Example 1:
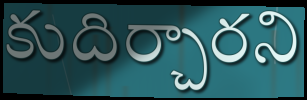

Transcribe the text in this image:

కుదిర్చారని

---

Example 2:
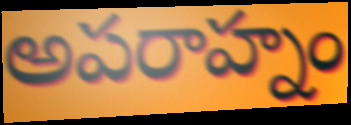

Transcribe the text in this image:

అపరాహ్నం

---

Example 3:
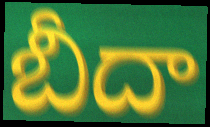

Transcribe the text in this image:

బీదా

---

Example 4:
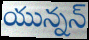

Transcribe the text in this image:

యున్నన్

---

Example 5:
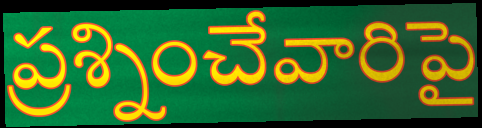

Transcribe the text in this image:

ప్రశ్నించేవారిపై